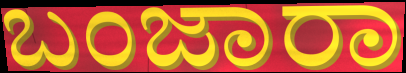
ಬಂಜಾರಾ